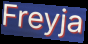
Freyja